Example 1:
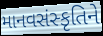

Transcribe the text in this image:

માનવસંસ્કૃતિને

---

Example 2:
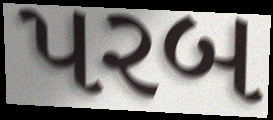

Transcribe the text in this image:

પરબ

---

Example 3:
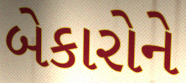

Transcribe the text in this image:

બેકારોને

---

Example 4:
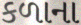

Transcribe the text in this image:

કળાના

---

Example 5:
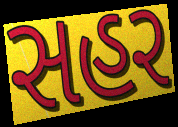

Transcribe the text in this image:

સહર